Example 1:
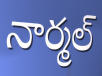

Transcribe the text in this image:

నార్మల్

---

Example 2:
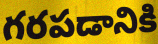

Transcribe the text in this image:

గరపడానికి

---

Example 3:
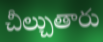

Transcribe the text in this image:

చీల్చుతారు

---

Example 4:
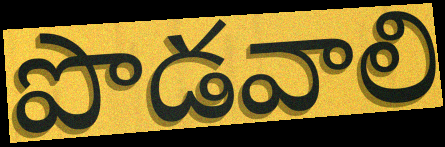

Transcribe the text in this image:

పొడవాలి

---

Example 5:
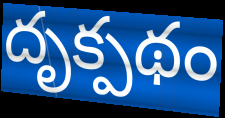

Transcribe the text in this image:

దృక్పథం